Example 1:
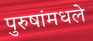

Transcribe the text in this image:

पुरुषांमधले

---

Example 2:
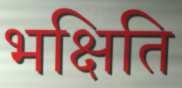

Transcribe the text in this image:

भक्षिति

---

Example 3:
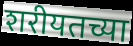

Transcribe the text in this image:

शरीयतच्या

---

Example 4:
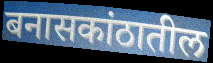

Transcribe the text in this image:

बनासकांठातील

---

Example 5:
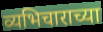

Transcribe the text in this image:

व्यभिचाराच्या